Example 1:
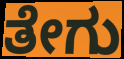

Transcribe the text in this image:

ತೇಗು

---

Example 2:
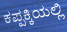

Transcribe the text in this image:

ಕಪ್ಪಕ್ಕಿಯಲ್ಲಿ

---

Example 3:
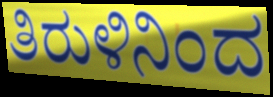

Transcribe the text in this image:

ತಿರುಳಿನಿಂದ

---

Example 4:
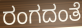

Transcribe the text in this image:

ರಂಗದಂತೆ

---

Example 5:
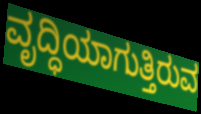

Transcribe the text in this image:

ವೃದ್ಧಿಯಾಗುತ್ತಿರುವ